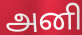
அனி